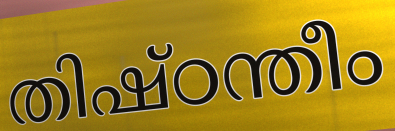
തിഷ്ഠന്തീം